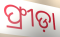
ଫ୍ରୀଡ଼ା